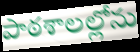
పాఠశాలల్లోను